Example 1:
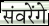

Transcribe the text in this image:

संवरेंगे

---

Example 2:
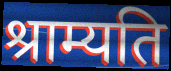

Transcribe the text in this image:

श्राम्यति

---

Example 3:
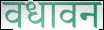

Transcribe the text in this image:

वधावन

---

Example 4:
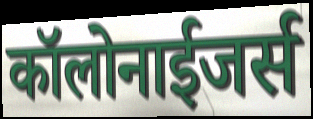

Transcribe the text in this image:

कॉलोनाईजर्स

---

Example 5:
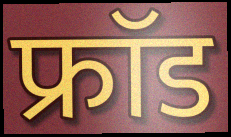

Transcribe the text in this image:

फ्रॉड